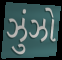
ઝુંઝો